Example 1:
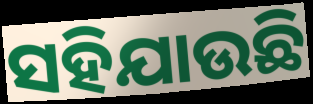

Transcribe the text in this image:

ସହିଯାଉଛି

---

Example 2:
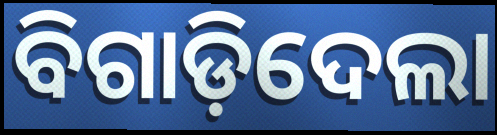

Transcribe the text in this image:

ବିଗାଡ଼ିଦେଲା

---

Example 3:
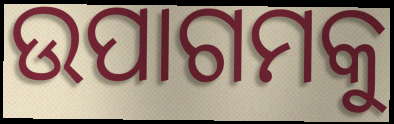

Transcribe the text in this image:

ଉପାଗମକୁ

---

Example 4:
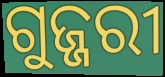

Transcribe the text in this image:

ଗୁଜ୍ଜରୀ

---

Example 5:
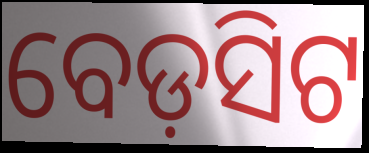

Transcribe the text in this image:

ବେଡ଼ସିଟ